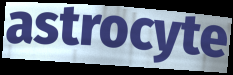
astrocyte